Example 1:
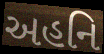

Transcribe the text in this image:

અહનિ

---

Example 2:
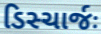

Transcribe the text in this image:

ડિસ્ચાર્જઃ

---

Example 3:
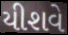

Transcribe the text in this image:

યીશવે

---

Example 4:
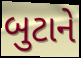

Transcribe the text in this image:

બુટાને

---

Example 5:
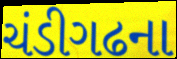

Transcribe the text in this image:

ચંડીગઢના